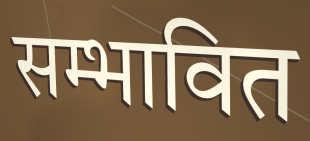
सम्भावित